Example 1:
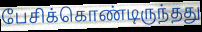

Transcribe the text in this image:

பேசிக்கொண்டிருந்தது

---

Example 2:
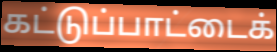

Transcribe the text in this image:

கட்டுப்பாட்டைக்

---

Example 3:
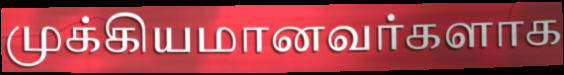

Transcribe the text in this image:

முக்கியமானவர்களாக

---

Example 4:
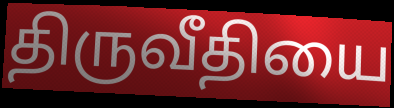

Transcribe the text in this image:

திருவீதியை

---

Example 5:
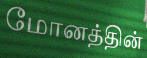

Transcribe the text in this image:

மோனத்தின்